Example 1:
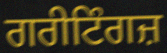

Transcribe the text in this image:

ਗਰੀਟਿੰਗਜ਼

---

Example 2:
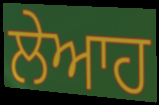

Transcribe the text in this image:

ਲੇਆਹ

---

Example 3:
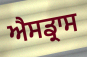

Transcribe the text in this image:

ਐਸਡ੍ਰਾਸ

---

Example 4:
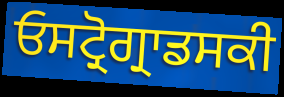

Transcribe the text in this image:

ਓਸਟ੍ਰੋਗ੍ਰਾਡਸਕੀ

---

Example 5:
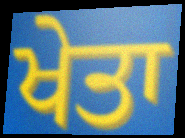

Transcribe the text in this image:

ਖੇਤਾ